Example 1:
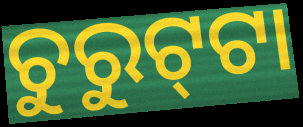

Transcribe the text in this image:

ଚୁରୁଟ୍‍ଟା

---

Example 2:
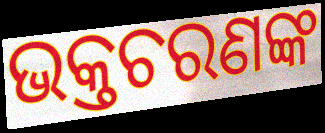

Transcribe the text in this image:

ଭକ୍ତଚରଣଙ୍କ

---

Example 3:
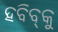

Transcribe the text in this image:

ହବିବ୍‌କୁ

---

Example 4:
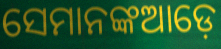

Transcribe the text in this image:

ସେମାନଙ୍କଆଡ଼େ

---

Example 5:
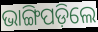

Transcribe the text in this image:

ଭାଙ୍ଗିପଡ଼ିଲେ